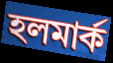
হলমার্ক